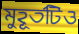
মুহূর্তটিও